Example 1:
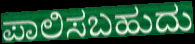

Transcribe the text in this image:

ಪಾಲಿಸಬಹುದು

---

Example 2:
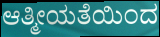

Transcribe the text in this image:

ಆತ್ಮೀಯತೆಯಿಂದ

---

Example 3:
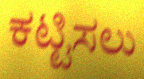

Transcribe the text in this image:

ಕಟ್ಟಿಸಲು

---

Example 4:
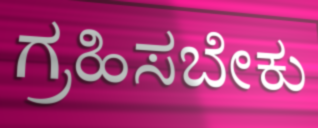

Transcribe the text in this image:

ಗ್ರಹಿಸಬೇಕು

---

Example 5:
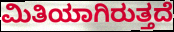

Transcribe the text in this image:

ಮಿತಿಯಾಗಿರುತ್ತದೆ